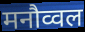
मनौव्वल